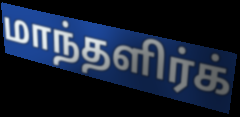
மாந்தளிர்க்